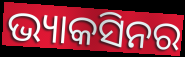
ଭ୍ୟାକସିନର